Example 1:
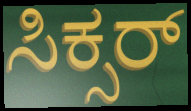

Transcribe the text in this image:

ಸಿಕ್ಸರ್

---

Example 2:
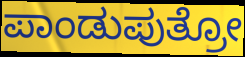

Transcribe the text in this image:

ಪಾಂಡುಪುತ್ರೋ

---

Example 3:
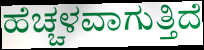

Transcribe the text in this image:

ಹೆಚ್ಚಳವಾಗುತ್ತಿದೆ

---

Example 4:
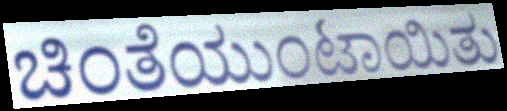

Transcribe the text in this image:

ಚಿಂತೆಯುಂಟಾಯಿತು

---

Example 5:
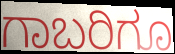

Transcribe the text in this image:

ಗಾಬರಿಗೂ